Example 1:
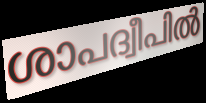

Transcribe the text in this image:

ശാപദ്വീപിൽ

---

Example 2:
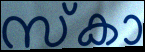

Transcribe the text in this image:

സ്കാ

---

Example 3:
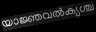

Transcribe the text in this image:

യാജ്ഞവൽക്യശ്ച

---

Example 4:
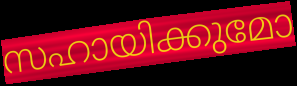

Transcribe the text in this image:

സഹായിക്കുമോ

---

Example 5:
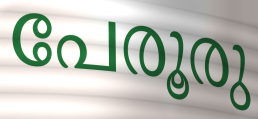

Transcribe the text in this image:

പേരൂരു